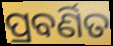
ପ୍ରବର୍ଣିତ